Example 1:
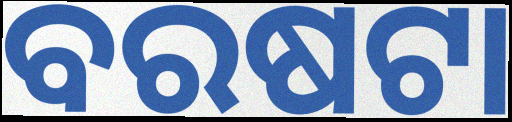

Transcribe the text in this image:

ବରଷଟା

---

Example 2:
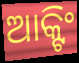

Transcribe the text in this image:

ଆକ୍ଟିଂ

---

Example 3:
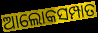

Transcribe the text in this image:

ଆଲୋକସମ୍ପାତ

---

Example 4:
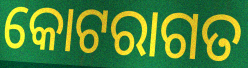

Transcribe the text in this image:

କୋଟରାଗତ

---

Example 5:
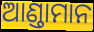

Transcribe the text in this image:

ଆଣ୍ଡାମାନ